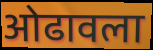
ओढावला